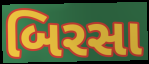
બિરસા